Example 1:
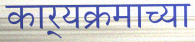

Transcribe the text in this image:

कार्यक्रमाच्या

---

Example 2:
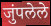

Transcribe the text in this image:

जुंपलेले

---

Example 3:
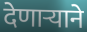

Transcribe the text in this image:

देणार्‍याने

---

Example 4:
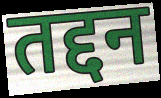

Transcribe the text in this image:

तद्दन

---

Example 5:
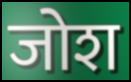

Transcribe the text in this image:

जोश